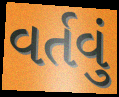
વર્તવું